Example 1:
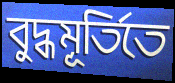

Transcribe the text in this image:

বুদ্ধমূর্তিতে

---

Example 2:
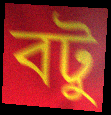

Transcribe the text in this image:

বটু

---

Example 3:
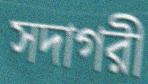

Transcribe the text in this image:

সদাগরী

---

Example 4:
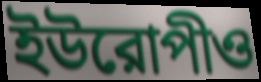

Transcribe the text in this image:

ইউরোপীও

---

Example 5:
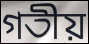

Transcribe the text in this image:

গতীয়